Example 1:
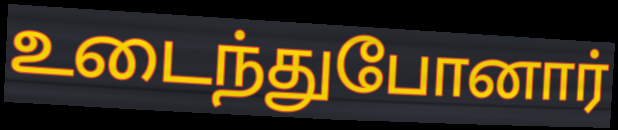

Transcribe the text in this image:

உடைந்துபோனார்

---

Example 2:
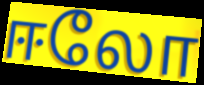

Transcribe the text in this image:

ஈலோ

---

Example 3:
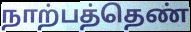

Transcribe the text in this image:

நாற்பத்தெண்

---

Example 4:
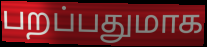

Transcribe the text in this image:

பறப்பதுமாக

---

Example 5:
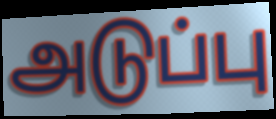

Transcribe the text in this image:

அடுப்பு